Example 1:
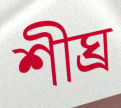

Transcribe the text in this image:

শীঘ্র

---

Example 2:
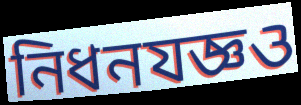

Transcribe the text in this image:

নিধনযজ্ঞও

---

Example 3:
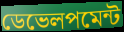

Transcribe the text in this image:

ডেভেলপমেন্ট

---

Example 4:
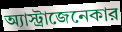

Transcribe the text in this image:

অ্যাস্ট্রাজেনেকার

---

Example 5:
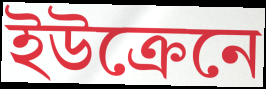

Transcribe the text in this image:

ইউক্রেনে